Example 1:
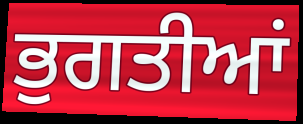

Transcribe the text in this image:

ਭੁਗਤੀਆਂ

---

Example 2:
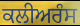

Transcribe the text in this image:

ਕਲੀਅਰੰਸ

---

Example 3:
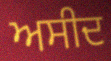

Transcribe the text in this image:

ਅਸੀਦ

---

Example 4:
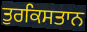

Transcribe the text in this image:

ਤੁਰਕਿਸਤਾਨ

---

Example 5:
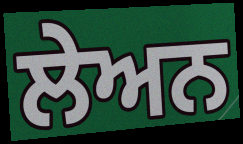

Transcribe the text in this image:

ਲੇਅਨ